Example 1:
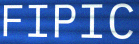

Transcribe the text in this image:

FIPIC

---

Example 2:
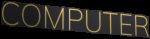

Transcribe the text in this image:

COMPUTER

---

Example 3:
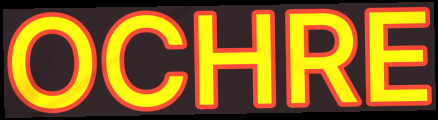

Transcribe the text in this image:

OCHRE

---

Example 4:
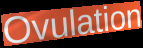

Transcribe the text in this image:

Ovulation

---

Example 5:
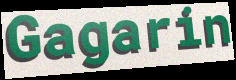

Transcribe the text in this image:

Gagarin